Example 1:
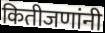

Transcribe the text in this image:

कितीजणांनी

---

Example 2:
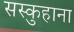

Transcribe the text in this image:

सस्कुहाना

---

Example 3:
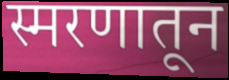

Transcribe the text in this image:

स्मरणातून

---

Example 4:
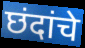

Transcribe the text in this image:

छंदांचे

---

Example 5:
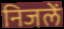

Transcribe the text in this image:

निजलें